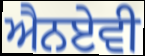
ਐਨਏਵੀ